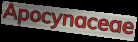
Apocynaceae